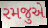
રમજુએ